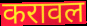
करावल